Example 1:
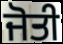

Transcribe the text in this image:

ਜੋਤੀ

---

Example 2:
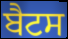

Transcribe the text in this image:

ਬੈਟਸ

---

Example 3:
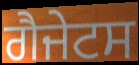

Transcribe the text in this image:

ਗੈਜੇਟਸ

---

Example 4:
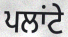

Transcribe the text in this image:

ਪਲਾਂਟੇ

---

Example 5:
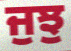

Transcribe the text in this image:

ਜੁਝੁ